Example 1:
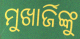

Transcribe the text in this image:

ମୁଖାର୍ଜିଙ୍କୁ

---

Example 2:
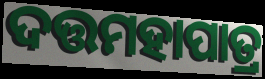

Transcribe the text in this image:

ଦତ୍ତମହାପାତ୍ର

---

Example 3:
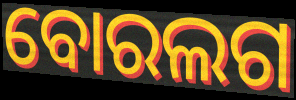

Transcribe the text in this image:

ବୋରଲଗ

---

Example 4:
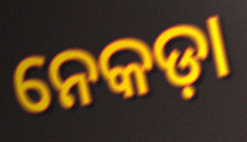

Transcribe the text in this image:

ନେକଡ଼ା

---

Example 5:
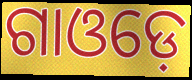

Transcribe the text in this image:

ଗାଓଡ଼େ